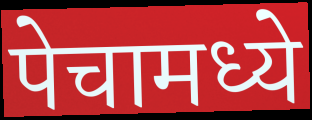
पेचामध्ये